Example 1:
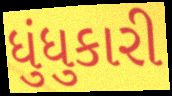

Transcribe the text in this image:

ધુંધુકારી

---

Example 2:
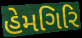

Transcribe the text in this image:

હેમગિરિ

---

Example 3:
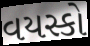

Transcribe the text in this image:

વયસ્કો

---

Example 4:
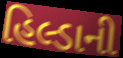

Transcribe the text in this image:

હિલ્ડાની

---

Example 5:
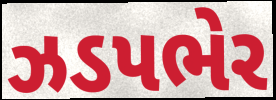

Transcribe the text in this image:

ઝડપભેર